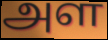
அள